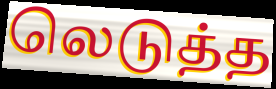
லெடுத்த